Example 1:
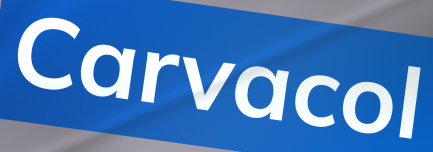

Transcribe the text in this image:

Carvacol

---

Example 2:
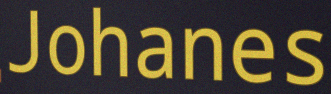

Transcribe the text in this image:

Johanes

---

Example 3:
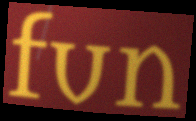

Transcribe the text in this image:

fun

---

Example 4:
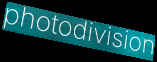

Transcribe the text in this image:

photodivision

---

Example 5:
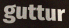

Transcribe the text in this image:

guttur